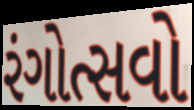
રંગોત્સવો